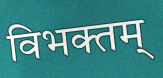
विभक्तम्